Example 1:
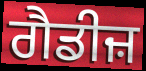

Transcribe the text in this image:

ਗੈਡੀਜ਼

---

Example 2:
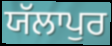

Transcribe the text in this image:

ਯੱਲਾਪੁਰ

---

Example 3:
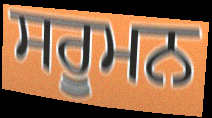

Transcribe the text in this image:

ਸਰੂਮਨ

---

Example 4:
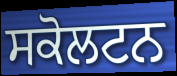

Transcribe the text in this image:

ਸਕੋਲਟਨ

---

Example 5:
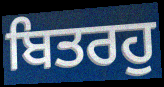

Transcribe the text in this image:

ਬਿਤਰਹੁ